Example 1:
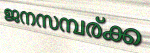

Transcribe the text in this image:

ജനസമ്പര്ക്ക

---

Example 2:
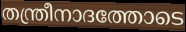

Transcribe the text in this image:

തന്ത്രീനാദത്തോടെ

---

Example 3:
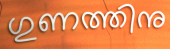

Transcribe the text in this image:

ഗുണത്തിനു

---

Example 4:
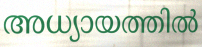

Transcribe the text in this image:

അധ്യായത്തിൽ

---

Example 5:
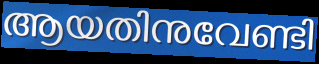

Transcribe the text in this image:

ആയതിനുവേണ്ടി